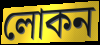
লোকন